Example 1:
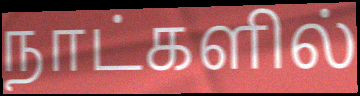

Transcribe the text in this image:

நாட்களில்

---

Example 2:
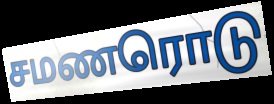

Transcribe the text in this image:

சமணரொடு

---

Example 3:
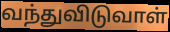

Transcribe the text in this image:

வந்துவிடுவாள்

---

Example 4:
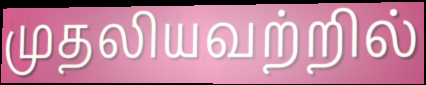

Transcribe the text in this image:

முதலியவற்றில்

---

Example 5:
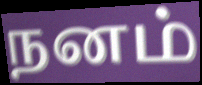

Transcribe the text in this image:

நனம்